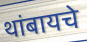
थांबायचे